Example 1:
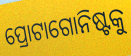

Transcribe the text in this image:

ପ୍ରୋଟାଗୋନିଷ୍ଟକୁ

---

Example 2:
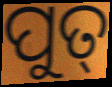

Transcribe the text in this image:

ପୁତ୍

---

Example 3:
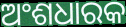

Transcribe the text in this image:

ଅଂଶଧାରକ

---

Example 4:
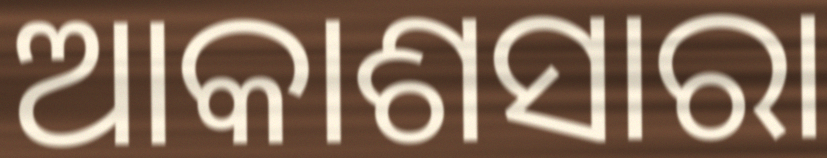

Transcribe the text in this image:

ଆକାଶସାରା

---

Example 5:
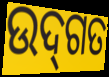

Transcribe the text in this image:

ଉଦ୍‌ଗତ